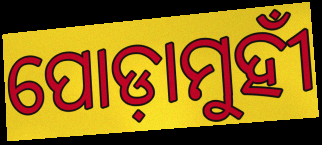
ପୋଡ଼ାମୁହୀଁ